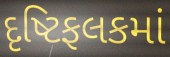
દૃષ્ટિફલકમાં